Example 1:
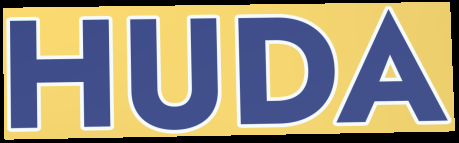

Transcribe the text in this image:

HUDA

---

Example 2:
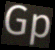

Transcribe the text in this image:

Gp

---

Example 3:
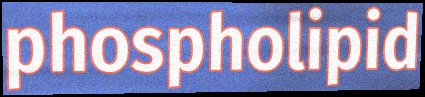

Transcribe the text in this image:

phospholipid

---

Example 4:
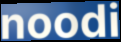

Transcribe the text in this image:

noodi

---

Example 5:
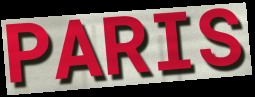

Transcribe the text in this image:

PARIS